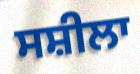
ਸਸ਼ੀਲਾ